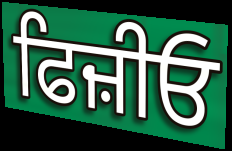
ਫਿਜ਼ੀਓ